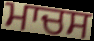
ਮਾਚਸ